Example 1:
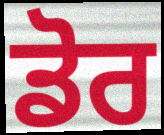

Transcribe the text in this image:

ਡੋਰ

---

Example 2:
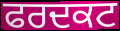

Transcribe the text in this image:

ਫਰਦਕਟ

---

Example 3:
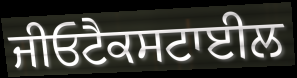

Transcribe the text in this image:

ਜੀਓਟੈਕਸਟਾਈਲ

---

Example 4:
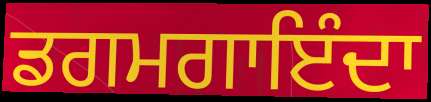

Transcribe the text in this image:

ਡਗਮਗਾਇੰਦਾ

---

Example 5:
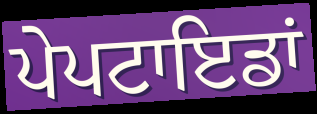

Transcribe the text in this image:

ਪੇਪਟਾਇਡਾਂ